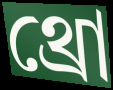
থ্রো